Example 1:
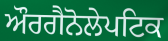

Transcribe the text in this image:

ਔਰਗੈਨੋਲੇਪਟਿਕ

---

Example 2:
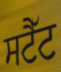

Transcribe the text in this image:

ਸਟੈੱਟ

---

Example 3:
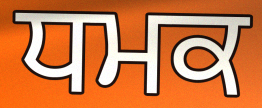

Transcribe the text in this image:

ਧਮਕ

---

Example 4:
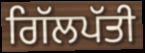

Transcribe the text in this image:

ਗਿੱਲਪੱਤੀ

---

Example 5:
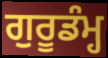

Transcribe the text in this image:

ਗੁਰੂਡੰਮ੍ਹ